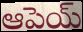
ఆపెయ్